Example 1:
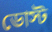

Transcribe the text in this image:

ডোস্ট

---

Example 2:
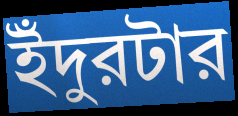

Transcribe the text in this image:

ইঁদুরটার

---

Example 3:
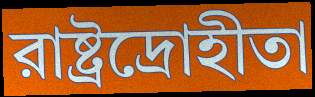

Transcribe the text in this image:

রাষ্ট্রদ্রোহীতা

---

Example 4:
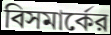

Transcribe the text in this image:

বিসমার্কের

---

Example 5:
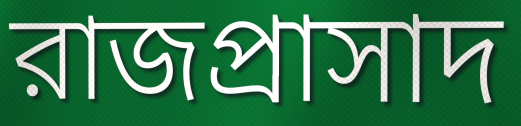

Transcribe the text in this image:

রাজপ্রাসাদ